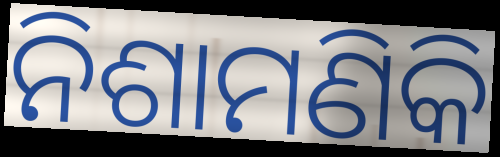
ନିଶାମଣିକି